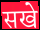
सखे